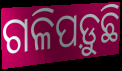
ଗଳିପଡ଼ୁଛି